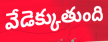
వేడెక్కుతుంది